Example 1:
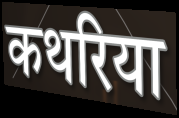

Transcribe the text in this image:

कथरिया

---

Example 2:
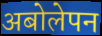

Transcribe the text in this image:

अबोलेपन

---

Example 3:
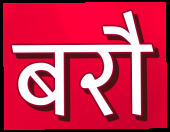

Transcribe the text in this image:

बरौ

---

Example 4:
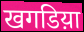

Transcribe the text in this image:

खगडिय़ा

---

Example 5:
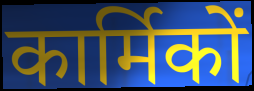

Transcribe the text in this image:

कार्मिकों